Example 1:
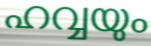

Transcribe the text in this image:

ഹവ്വയും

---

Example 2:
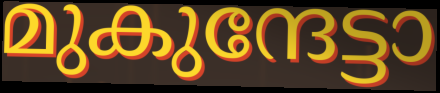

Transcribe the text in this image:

മുകുന്ദേട്ടാ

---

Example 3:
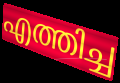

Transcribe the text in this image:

എത്തിച്ച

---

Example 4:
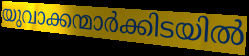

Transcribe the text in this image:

യുവാക്കന്മാർക്കിടയിൽ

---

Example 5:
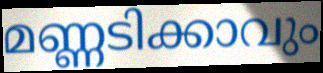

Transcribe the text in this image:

മണ്ണടിക്കാവും